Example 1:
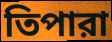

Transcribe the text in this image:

তিপারা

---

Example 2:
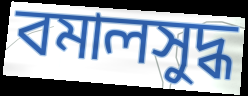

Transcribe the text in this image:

বমালসুদ্ধ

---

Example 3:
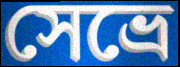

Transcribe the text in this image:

সেভ্রে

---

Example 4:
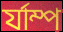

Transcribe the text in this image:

র্যাম্প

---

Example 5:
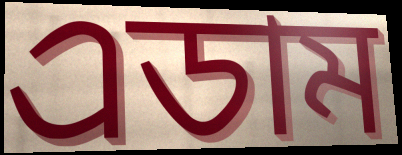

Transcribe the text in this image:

এডাম